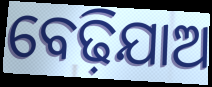
ବେଢ଼ିଯାଅ